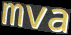
mva